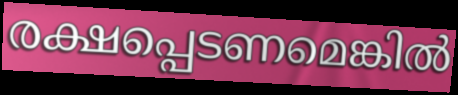
രക്ഷപ്പെടണമെങ്കിൽ